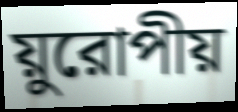
য়ুরোপীয়